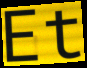
Et